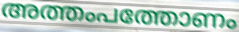
അത്തംപത്തോണം